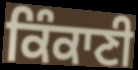
ਕਿੰਕਾਣੀ